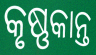
କୃଷ୍ଣକାନ୍ତ